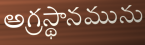
అగ్రస్థానమును